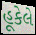
હૂકેલે